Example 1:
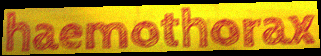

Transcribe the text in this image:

haemothorax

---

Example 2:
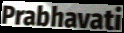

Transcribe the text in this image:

Prabhavati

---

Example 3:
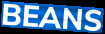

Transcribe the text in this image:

BEANS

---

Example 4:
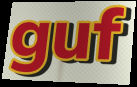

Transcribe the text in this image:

guf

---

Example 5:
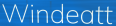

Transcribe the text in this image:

Windeatt